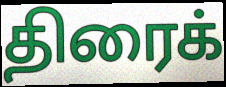
திரைக்